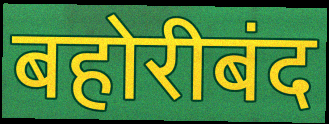
बहोरीबंद